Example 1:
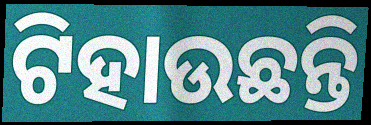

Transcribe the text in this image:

ଟିହାଉଛନ୍ତି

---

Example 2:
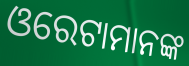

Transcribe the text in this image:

ଓରେଟାମାନଙ୍କ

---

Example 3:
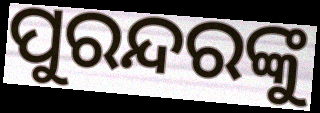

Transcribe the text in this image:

ପୁରନ୍ଦରଙ୍କୁ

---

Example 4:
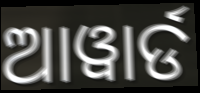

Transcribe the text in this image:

ଆୱାର୍ଡ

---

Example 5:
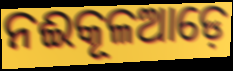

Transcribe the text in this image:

ନଈକୂଳଆଡ଼େ